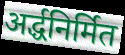
अर्द्धनिर्मित